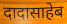
दादासाहेब